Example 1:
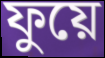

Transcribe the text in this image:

ফুয়ে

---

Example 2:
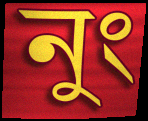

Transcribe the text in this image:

নুং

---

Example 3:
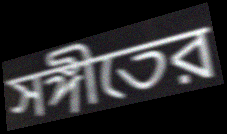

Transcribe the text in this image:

সঙ্গীতের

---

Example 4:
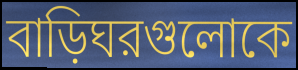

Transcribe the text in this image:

বাড়িঘরগুলোকে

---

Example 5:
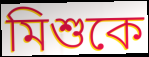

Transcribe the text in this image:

মিশুকে